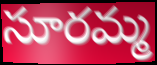
సూరమ్మ